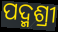
ପଦ୍ମଶ୍ରୀ